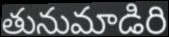
తునుమాడిరి